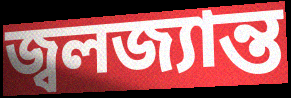
জ্বলজ্যান্ত